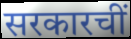
सरकारचीं